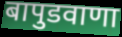
बापुडवाणा